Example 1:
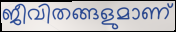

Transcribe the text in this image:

ജീവിതങ്ങളുമാണ്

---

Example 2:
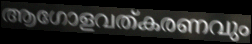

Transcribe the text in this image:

ആഗോളവത്കരണവും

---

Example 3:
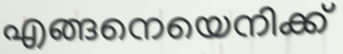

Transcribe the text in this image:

എങ്ങനെയെനിക്ക്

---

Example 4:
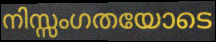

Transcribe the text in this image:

നിസ്സംഗതയോടെ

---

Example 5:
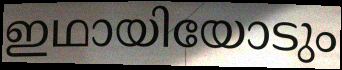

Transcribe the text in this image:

ഇഥായിയോടും